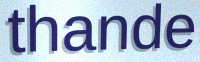
thande